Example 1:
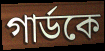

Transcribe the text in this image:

গার্ডকে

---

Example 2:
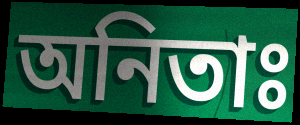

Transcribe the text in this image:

অনিতাঃ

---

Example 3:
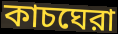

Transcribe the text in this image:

কাচঘেরা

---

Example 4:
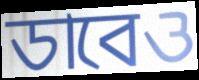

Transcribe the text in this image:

ডাবেও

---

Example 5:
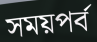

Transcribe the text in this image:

সময়পর্ব